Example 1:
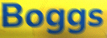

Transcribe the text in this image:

Boggs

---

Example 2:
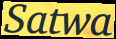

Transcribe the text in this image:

Satwa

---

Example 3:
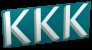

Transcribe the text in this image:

KKK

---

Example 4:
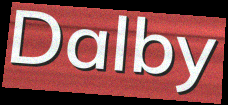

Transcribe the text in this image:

Dalby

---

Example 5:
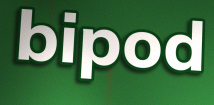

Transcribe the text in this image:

bipod